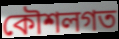
কৌশলগত